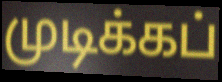
முடிக்கப்